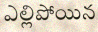
ఎల్లిపోయిన